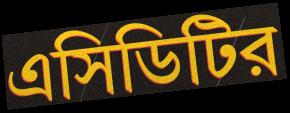
এসিডিটির